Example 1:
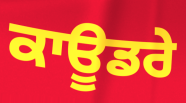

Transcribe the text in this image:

ਕਾਊਡਰੇ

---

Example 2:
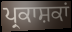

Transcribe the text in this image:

ਪ੍ਰਕਾਸ਼ਕਾਂ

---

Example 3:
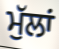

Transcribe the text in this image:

ਮੁੱਲਾਂ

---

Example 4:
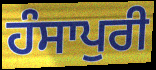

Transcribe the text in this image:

ਹੰਸਾਪੁਰੀ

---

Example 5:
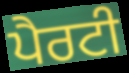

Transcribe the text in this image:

ਪੈਰਟੀ